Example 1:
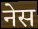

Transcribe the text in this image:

नेस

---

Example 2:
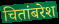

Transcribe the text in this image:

चितांबरेश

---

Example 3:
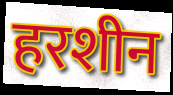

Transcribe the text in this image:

हरशीन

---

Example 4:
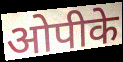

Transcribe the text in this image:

ओपीके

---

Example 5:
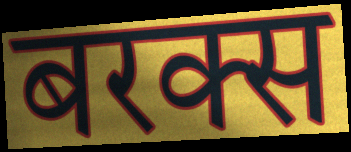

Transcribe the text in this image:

बरक्स